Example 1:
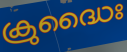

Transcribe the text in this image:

ക്രുദ്ധൈഃ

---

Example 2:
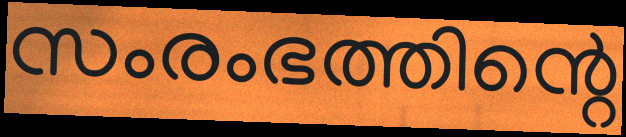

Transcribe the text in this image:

സംരംഭത്തിന്റെ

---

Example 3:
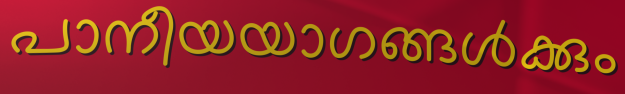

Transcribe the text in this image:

പാനീയയാഗങ്ങൾക്കും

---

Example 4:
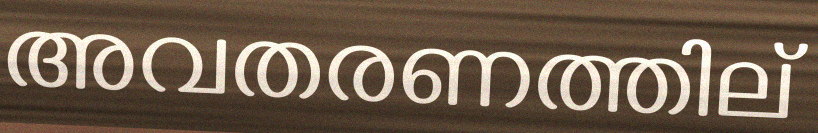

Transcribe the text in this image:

അവതരണത്തില്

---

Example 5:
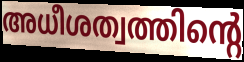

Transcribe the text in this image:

അധീശത്വത്തിന്റെ